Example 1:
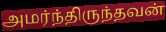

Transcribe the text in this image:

அமர்ந்திருந்தவன்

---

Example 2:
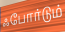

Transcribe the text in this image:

ஃபோர்டும்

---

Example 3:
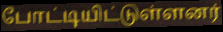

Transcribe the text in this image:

போட்டியிட்டுள்ளனர்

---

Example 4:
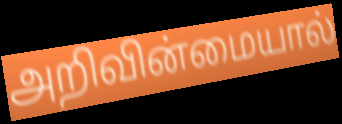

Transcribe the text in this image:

அறிவின்மையால்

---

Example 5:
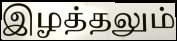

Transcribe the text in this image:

இழத்தலும்